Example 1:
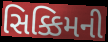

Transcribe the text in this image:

સિક્કિમની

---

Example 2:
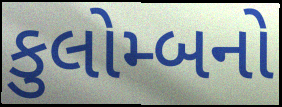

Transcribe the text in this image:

કુલોમ્બનો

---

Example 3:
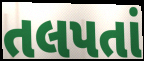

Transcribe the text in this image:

તલપતાં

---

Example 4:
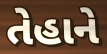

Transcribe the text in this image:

તેહાને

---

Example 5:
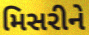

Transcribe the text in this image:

મિસરીને